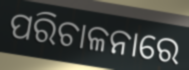
ପରିଚାଳନାରେ